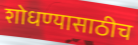
शोधण्यासाठीच